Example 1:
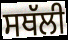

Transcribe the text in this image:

ਸਥੱਲੀ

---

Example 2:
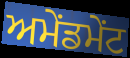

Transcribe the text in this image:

ਅਮੇਂਡਮੇਂਟ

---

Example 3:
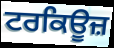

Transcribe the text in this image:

ਟਰਕਿਊਜ਼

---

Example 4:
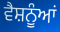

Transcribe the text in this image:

ਵੈਸ਼ਨੂੰਆਂ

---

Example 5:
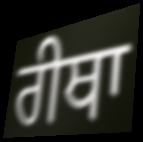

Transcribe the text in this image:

ਰੀਥਾ